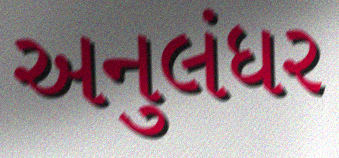
અનુલંધર